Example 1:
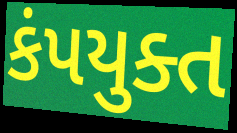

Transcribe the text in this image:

કંપયુક્ત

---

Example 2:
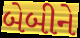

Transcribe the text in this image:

બેબીને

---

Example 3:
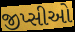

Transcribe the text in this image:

જીપ્સીઓ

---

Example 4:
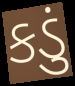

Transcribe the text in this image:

કડું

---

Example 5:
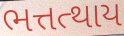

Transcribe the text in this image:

ભત્તત્થાય